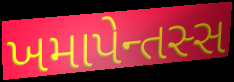
ખમાપેન્તસ્સ